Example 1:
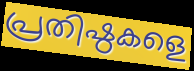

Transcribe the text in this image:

പ്രതിഷ്ഠകളെ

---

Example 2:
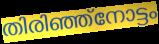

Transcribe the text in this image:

തിരിഞ്ഞ്നോട്ടം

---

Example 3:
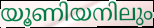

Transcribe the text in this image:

യൂണിയനിലും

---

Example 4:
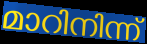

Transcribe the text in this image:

മാറിനിന്ന്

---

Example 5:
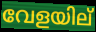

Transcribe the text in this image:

വേളയില്